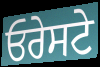
ਓਰੇਸਟੇ